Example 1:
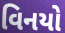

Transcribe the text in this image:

વિનયો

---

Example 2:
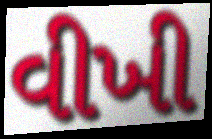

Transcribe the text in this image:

વીખી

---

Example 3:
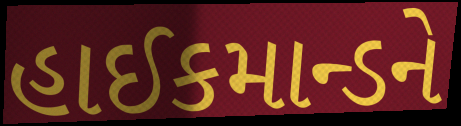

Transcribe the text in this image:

હાઈકમાન્ડને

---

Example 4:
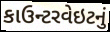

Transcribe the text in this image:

કાઉન્ટરવેઇટનું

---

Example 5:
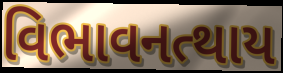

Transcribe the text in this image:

વિભાવનત્થાય